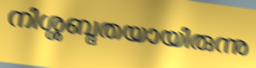
നിശ്ശബ്ദതയായിരുന്നു